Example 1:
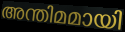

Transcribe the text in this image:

അന്തിമമായി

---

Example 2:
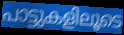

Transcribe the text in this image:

പാട്ടുകളിലൂടെ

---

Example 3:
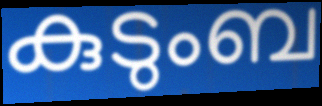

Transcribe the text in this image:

കുടുംബ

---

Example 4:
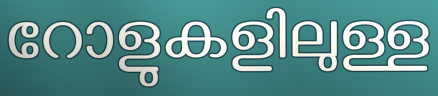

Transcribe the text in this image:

റോളുകളിലുള്ള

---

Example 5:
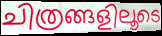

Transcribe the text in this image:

ചിത്രങ്ങളിലൂടെ